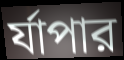
র্যাপার